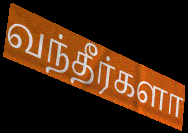
வந்தீர்களா